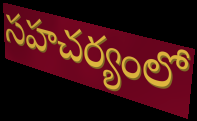
సహచర్యంలో